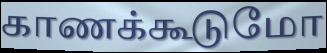
காணக்கூடுமோ